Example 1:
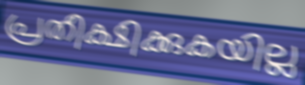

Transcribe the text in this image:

പ്രതീക്ഷിക്കുകയില്ല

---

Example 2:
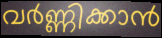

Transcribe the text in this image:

വർണ്ണിക്കാൻ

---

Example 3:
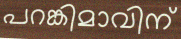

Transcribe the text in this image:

പറങ്കിമാവിന്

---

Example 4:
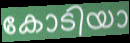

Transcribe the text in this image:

കോടിയാ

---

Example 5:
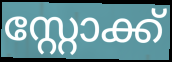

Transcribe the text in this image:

സ്റ്റോക്ക്